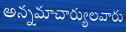
అన్నమాచార్యులవారు